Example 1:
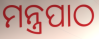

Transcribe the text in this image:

ମନ୍ତ୍ରପାଠ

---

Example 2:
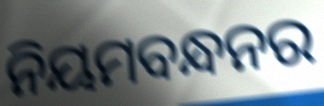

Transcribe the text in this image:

ନିୟମବନ୍ଧନର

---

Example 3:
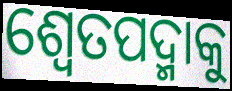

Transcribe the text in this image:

ଶ୍ୱେତପଦ୍ମାକୁ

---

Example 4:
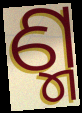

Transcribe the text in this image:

ଣ୍ମ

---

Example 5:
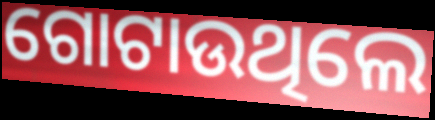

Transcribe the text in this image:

ଗୋଟାଉଥିଲେ